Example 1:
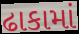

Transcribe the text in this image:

ઢાકામાં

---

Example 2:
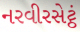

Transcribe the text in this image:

નરવીરસેટ્ઠં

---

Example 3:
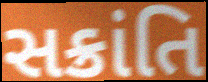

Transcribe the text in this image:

સક્રાંતિ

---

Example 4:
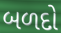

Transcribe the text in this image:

બળદો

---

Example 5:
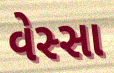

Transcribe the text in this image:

વેસ્સા